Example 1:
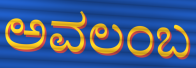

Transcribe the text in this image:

ಅವಲಂಬ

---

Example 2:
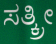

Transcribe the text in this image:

ಸತ್ಕ್ರೀ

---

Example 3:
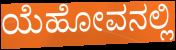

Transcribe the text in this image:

ಯೆಹೋವನಲ್ಲಿ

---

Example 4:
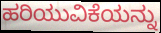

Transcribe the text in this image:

ಹರಿಯುವಿಕೆಯನ್ನು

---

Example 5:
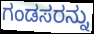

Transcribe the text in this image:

ಗಂಡಸರನ್ನು